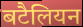
बटैलियन